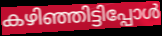
കഴിഞ്ഞിട്ടിപ്പോൾ